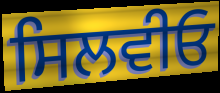
ਸਿਲਵੀਓ